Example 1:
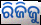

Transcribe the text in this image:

ରିଜିଜୁ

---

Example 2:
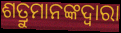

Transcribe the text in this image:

ଶତ୍ରୁମାନଙ୍କଦ୍ଵାରା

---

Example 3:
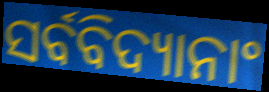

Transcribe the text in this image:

ସର୍ବବିଦ୍ୟାନାଂ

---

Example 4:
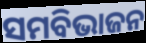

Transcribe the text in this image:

ସମବିଭାଜନ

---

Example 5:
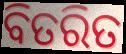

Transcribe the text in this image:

ବିତରିତ